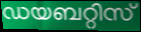
ഡയബറ്റിസ്